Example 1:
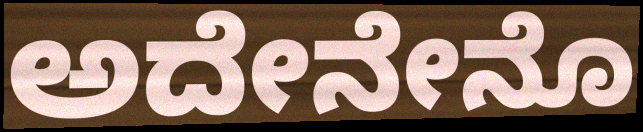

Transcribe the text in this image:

ಅದೇನೇನೊ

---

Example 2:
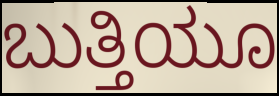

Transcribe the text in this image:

ಬುತ್ತಿಯೂ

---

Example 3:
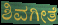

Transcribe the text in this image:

ಶಿವಗೀತೆ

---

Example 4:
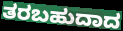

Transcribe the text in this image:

ತರಬಹುದಾದ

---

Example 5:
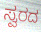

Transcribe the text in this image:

ಸ್ವರದ